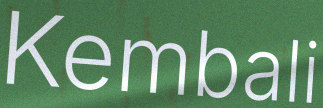
Kembali